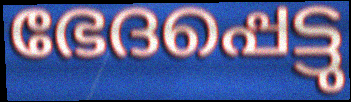
ഭേദപ്പെട്ടു